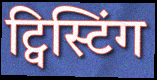
ट्विस्टिंग